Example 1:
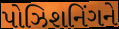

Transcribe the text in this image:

પોઝિશનિંગને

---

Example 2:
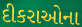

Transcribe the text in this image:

દીકરાઓના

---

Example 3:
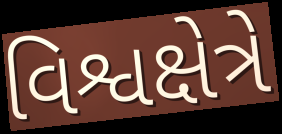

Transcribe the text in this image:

વિશ્વક્ષેત્રે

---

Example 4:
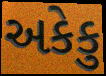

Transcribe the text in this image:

અકેકુ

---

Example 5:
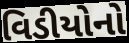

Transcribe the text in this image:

વિડીયોનો